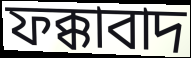
ফক্কাবাদ